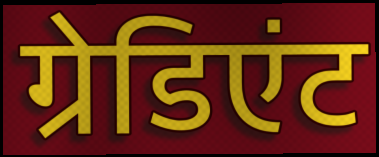
ग्रेडिएंट